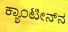
ಕ್ಯಾಂಟೀನ್‌ನ